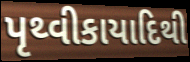
પૃથ્વીકાયાદિથી